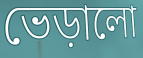
ভেড়ালো